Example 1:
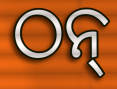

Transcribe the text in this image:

ଠନ୍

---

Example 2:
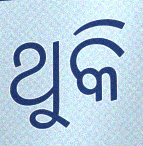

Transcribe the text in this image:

ଥୁକି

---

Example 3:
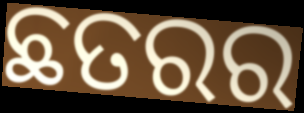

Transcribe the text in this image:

ଛତରର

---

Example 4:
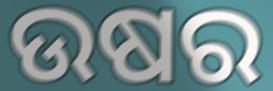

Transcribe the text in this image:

ଉଷର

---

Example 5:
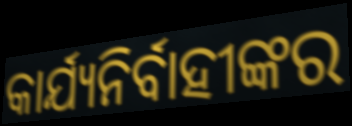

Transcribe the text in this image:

କାର୍ଯ୍ୟନିର୍ବାହୀଙ୍କର